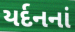
યર્દનનાં